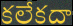
కలేకదా